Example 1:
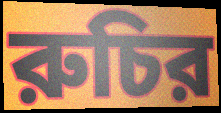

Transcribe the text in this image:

রুচির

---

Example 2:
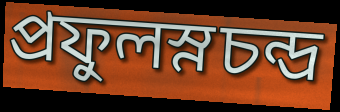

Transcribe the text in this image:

প্রফুলস্নচন্দ্র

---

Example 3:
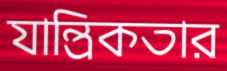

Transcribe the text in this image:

যান্ত্রিকতার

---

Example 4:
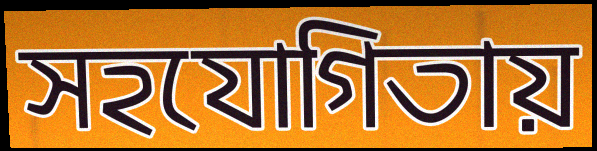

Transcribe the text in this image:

সহযোগিতায়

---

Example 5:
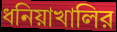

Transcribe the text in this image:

ধনিয়াখালির